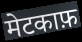
मेटकाफ़